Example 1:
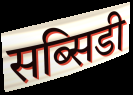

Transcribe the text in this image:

सब्सिडी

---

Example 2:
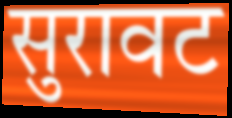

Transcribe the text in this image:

सुरावट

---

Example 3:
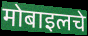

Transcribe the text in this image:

मोबाइलचे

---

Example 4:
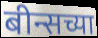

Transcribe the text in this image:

बीन्सच्या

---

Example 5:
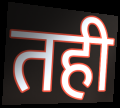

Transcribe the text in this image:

तही